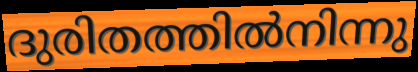
ദുരിതത്തിൽനിന്നു